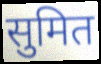
सुमित